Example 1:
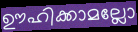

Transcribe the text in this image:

ഊഹിക്കാമല്ലോ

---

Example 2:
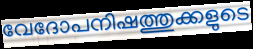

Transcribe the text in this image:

വേദോപനിഷത്തുക്കളുടെ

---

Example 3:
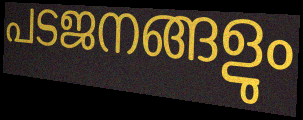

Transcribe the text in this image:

പടജനങ്ങളും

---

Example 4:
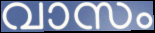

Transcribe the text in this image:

വാസം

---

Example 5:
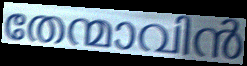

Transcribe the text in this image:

തേന്മാവിൻ